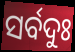
ସର୍ବଦୁଃ